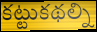
కట్టుకథల్ని